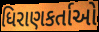
ધિરાણકર્તાઓ